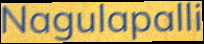
Nagulapalli